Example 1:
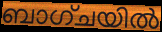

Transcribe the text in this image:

ബാഗ്ചയിൽ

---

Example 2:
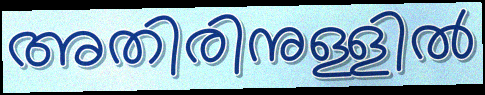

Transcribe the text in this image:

അതിരിനുള്ളിൽ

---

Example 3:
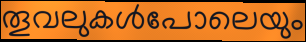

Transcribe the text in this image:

തൂവലുകൾപോലെയും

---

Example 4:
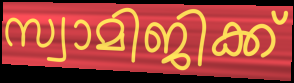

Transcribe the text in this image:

സ്വാമിജിക്ക്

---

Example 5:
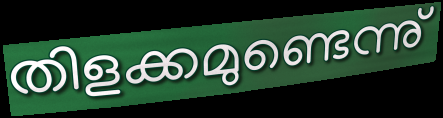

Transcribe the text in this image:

തിളക്കമുണ്ടെന്നു്